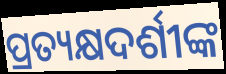
ପ୍ରତ୍ୟକ୍ଷଦର୍ଶୀଙ୍କ